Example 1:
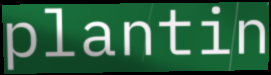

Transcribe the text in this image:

plantin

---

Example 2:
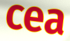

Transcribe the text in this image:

cea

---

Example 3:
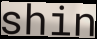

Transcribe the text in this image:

shin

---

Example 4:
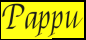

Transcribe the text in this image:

Pappu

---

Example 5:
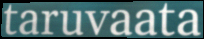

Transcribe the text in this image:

taruvaata